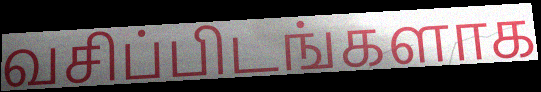
வசிப்பிடங்களாக